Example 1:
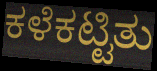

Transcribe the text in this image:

ಕಳೆಕಟ್ಟಿತು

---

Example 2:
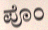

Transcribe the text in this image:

ಪೊಂ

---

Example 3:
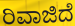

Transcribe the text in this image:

ರಿವಾಜಿದೆ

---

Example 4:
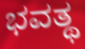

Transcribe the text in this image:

ಭವತ್ಥ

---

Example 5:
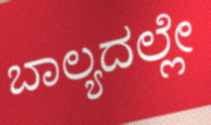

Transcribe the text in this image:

ಬಾಲ್ಯದಲ್ಲೇ